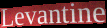
Levantine